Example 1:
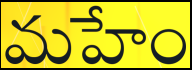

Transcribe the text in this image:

మహేం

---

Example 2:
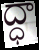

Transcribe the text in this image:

ద్ధా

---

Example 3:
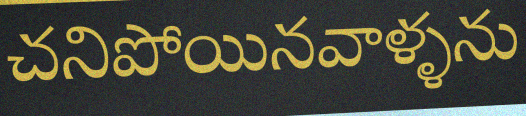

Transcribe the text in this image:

చనిపోయినవాళ్ళను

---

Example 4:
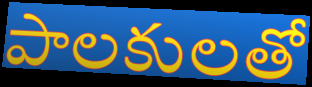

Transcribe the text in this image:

పాలకులతో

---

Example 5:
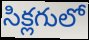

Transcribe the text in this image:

సిక్లగులో